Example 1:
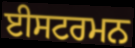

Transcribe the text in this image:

ਈਸਟਰਮਨ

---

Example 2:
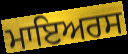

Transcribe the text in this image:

ਮਾਇਅਰਸ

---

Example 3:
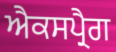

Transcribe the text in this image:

ਐਕਸਪ੍ਰੈਗ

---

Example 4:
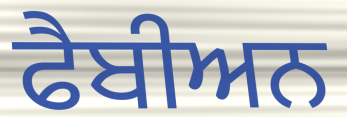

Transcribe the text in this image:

ਫੈਬੀਅਨ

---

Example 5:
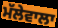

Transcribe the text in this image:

ਮੱਲੇਵਾਲਾ